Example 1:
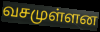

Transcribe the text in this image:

வசமுள்ளன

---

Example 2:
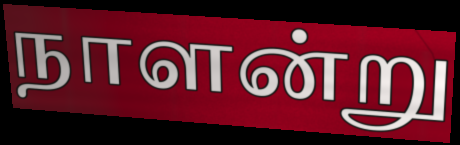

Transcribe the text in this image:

நாளன்று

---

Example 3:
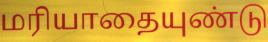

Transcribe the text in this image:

மரியாதையுண்டு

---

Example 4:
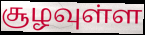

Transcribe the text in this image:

சூழவுள்ள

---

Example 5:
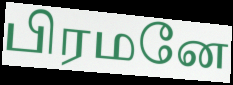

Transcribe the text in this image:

பிரமனே